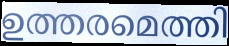
ഉത്തരമെത്തി